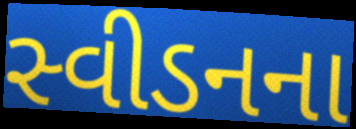
સ્વીડનના